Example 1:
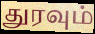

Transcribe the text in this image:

துரவும்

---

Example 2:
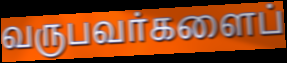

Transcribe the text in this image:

வருபவர்களைப்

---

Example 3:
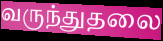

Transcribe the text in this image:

வருந்துதலை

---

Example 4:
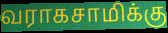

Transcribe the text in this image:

வராகசாமிக்கு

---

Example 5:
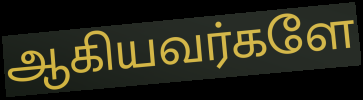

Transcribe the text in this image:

ஆகியவர்களே